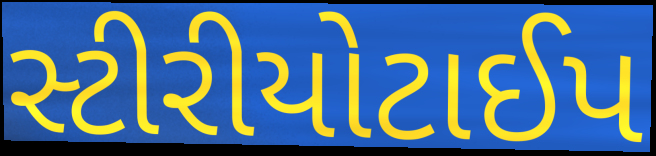
સ્ટીરીયોટાઈપ